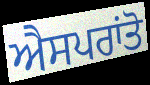
ਐਸਪਰਾਂਤੋ